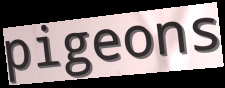
pigeons